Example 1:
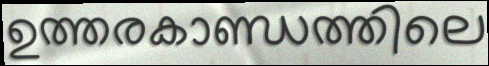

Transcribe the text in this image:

ഉത്തരകാണ്ഡത്തിലെ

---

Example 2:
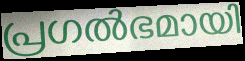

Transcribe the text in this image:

പ്രഗൽഭമായി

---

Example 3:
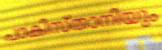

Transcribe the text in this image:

പാകിസ്താനിയും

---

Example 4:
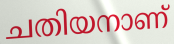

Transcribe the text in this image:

ചതിയനാണ്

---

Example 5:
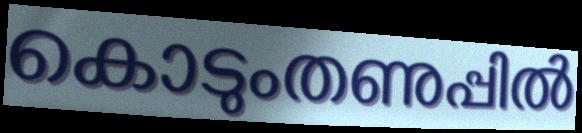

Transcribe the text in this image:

കൊടുംതണുപ്പിൽ